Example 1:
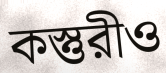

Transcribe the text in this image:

কস্তুরীও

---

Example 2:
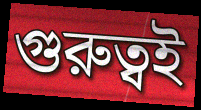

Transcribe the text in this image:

গুরুত্বই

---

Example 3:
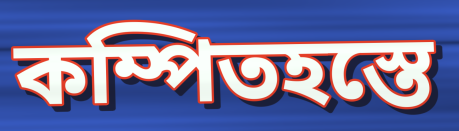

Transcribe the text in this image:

কম্পিতহস্তে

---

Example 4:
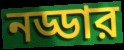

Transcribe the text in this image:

নড্ডার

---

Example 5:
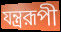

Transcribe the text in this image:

যন্ত্ররূপী